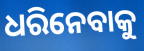
ଧରିନେବାକୁ